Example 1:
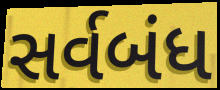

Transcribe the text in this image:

સર્વબંધ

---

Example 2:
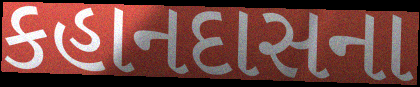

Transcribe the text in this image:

કહાનદાસના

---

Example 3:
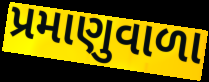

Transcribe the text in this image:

પ્રમાણુવાળા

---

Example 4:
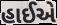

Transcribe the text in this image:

હાઈએ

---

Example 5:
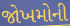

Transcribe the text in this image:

જોખમોની